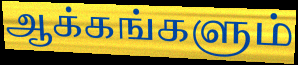
ஆக்கங்களும்